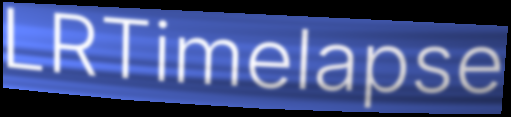
LRTimelapse